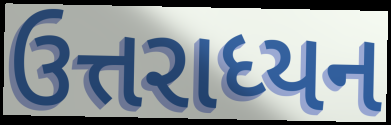
ઉત્તરાધ્યન